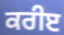
ਕਰੀੲ